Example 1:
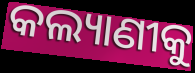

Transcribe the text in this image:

କଲ୍ୟାଣୀକୁ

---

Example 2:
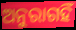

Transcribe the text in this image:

ଅନୁରାଗହିଁ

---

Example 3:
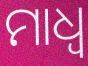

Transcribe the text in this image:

ମାଧ୍ଵ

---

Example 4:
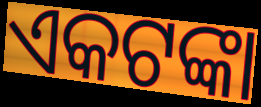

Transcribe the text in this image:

ଏକଟଙ୍କା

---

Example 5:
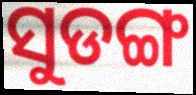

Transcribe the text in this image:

ସୁଡଙ୍ଗ